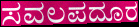
ಸವಲಪದೂರ